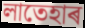
লাতেহাৰ